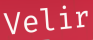
Velir